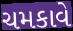
ચમકાવે